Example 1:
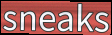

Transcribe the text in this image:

sneaks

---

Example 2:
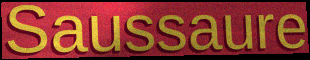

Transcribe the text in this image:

Saussaure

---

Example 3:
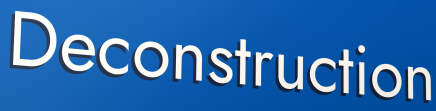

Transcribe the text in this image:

Deconstruction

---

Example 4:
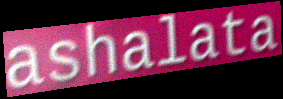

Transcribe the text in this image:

ashalata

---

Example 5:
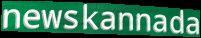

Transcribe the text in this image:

newskannada